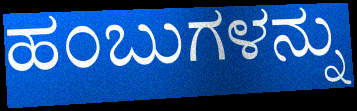
ಹಂಬುಗಳನ್ನು